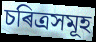
চৰিত্ৰসমূহ